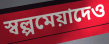
স্বল্পমেয়াদেও